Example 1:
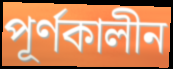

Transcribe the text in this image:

পূৰ্ণকালীন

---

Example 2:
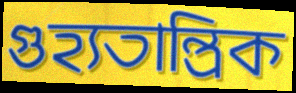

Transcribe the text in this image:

গুহ্যতান্ত্ৰিক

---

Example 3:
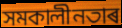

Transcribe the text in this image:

সমকালীনতাৰ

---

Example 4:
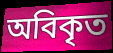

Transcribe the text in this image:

অবিকৃত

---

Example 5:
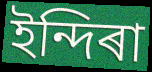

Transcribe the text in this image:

ইন্দিৰা